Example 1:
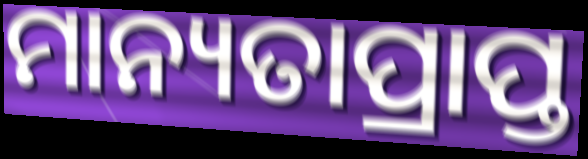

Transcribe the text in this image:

ମାନ୍ୟତାପ୍ରାପ୍ତ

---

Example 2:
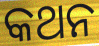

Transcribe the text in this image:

କଥନ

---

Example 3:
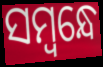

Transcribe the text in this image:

ସମ୍ବନ୍ଧେ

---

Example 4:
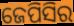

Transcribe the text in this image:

ଜେପିସିର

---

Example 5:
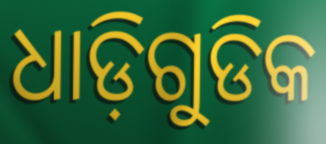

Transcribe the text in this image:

ଧାଡ଼ିଗୁଡିକ